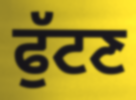
ਫੁੱਟਣ